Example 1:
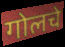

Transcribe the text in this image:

गोलचे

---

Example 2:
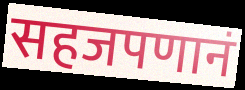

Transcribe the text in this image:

सहजपणानं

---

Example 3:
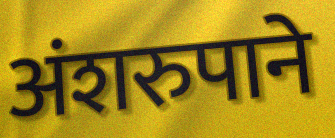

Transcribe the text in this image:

अंशरुपाने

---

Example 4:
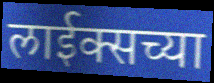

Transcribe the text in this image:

लाईक्सच्या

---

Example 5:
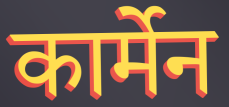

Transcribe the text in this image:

कार्मेन